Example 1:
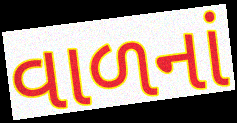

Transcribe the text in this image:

વાળનાં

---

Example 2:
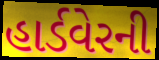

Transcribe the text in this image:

હાર્ડવેરની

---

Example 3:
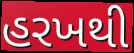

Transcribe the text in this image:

હરખથી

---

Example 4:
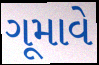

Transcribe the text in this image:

ગૂમાવે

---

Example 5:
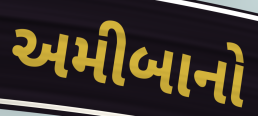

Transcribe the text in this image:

અમીબાનો